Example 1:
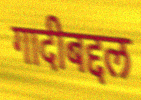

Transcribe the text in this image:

गादीबद्दल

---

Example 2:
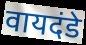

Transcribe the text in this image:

वायदंडे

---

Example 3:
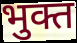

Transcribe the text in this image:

भुक्त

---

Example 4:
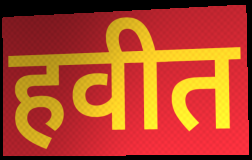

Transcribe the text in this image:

हवीत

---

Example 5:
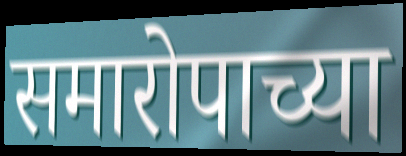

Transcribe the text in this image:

समारोपाच्या